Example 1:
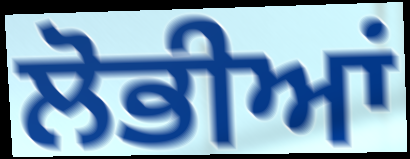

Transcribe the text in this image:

ਲੋਭੀਆਂ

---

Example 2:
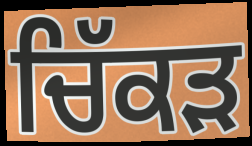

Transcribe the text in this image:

ਚਿੱਕੜ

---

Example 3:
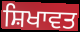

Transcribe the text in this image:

ਸ਼ਿਖਾਵਤ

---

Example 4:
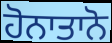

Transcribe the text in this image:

ਹੋਨਾਤਾਨੋ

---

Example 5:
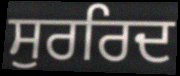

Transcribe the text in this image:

ਸੁਰਰਿਦ